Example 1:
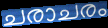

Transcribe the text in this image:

ചരാചരം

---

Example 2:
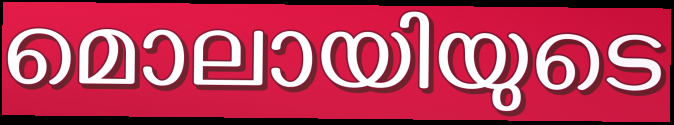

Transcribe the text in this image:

മൊലായിയുടെ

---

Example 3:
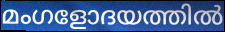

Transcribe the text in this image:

മംഗളോദയത്തിൽ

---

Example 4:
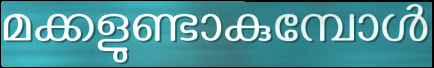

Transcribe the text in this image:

മക്കളുണ്ടാകുമ്പോൾ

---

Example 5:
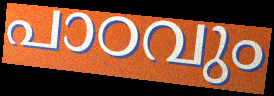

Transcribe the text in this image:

പാഠവും